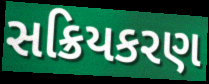
સક્રિયકરણ